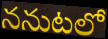
ననుటలో